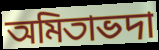
অমিতাভদা